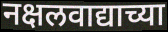
नक्षलवाद्याच्या